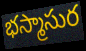
భస్మాసుర